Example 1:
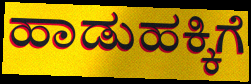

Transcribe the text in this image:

ಹಾಡುಹಕ್ಕಿಗೆ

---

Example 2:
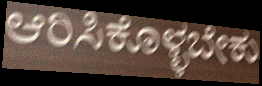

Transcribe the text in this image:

ಆರಿಸಿಕೊಳ್ಳಬೇಕು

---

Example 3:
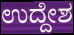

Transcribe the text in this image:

ಉದ್ದೇಶ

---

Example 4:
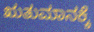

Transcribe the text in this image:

ಋತುಮಾನಕ್ಕೆ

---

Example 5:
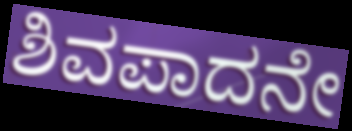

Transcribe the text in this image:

ಶಿವಪಾದನೇ